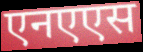
एनएएस